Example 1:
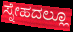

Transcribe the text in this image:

ಸ್ನೇಹದಲ್ಲೂ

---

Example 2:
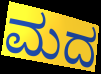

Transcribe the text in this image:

ಮದ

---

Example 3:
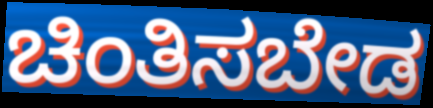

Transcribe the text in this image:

ಚಿಂತಿಸಬೇಡ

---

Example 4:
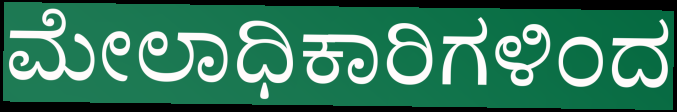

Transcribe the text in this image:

ಮೇಲಾಧಿಕಾರಿಗಳಿಂದ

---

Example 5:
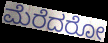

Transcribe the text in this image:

ಮೆರೆದರೋ